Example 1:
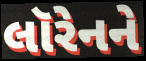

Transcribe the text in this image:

લૉરેનને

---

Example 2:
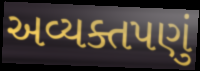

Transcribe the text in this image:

અવ્યક્તપણું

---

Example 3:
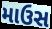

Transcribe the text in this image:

માઉસ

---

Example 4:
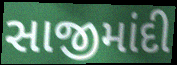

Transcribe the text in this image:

સાજીમાંદી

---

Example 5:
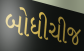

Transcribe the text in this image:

બોધીચીજ